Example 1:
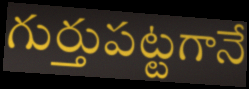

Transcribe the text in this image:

గుర్తుపట్టగానే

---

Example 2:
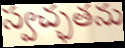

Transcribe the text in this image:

స్వచ్ఛతను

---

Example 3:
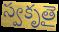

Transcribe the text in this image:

స్వకృతై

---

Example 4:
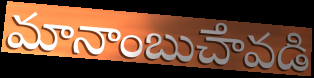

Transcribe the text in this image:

మానాంబుౘావడి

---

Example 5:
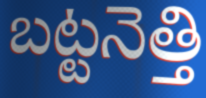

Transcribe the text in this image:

బట్టనెత్తి